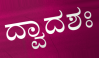
ದ್ವಾದಶಃ